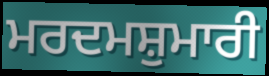
ਮਰਦਮਸ਼ੁਮਾਰੀ